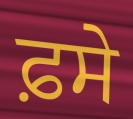
ਫ਼ਸੇ